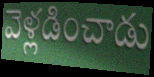
వెళ్లడించాడు